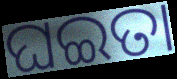
ଘଇତା